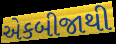
એકબીજાથી